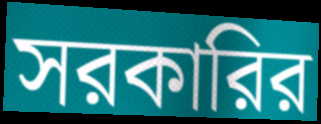
সরকারির